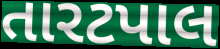
તારટપાલ